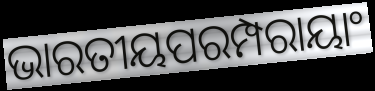
ଭାରତୀୟପରମ୍ପରାୟାଂ